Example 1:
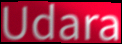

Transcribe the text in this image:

Udara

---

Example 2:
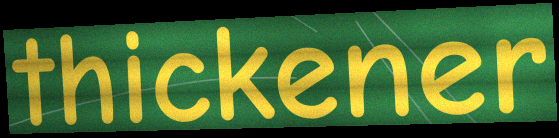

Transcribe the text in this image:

thickener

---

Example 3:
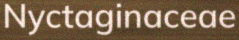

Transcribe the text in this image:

Nyctaginaceae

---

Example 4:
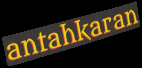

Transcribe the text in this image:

antahkaran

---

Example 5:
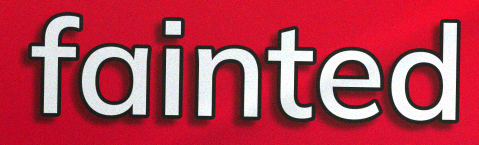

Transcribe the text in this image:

fainted